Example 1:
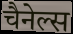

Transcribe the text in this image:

चैनेल्स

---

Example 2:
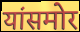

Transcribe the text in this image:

यांसमोर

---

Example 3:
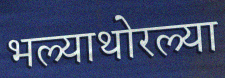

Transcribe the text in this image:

भल्याथोरल्या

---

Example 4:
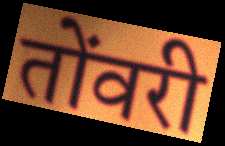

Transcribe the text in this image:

तोंवरी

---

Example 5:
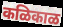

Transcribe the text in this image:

कळिकाळ